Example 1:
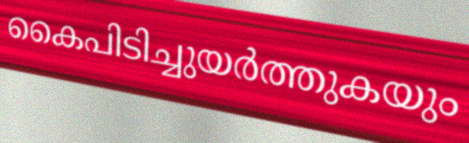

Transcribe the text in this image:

കൈപിടിച്ചുയർത്തുകയും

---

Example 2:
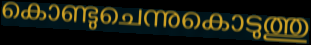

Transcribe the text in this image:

കൊണ്ടുചെന്നുകൊടുത്തു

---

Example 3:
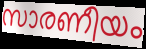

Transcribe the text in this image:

സാരണീയം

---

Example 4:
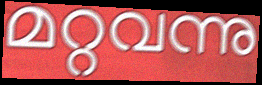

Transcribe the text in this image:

മറ്റവന്നു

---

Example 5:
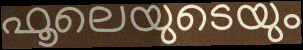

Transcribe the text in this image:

ഫൂലെയുടെയും